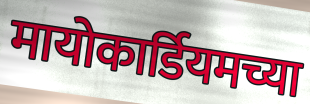
मायोकार्डियमच्या